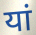
यां